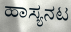
ಹಾಸ್ಯನಟ